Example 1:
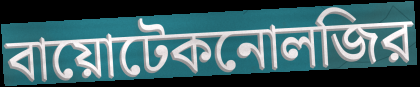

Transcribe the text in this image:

বায়োটেকনোলজির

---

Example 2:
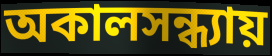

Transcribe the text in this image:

অকালসন্ধ্যায়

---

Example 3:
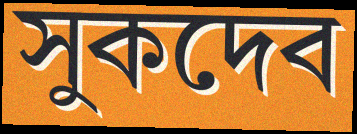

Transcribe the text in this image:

সুকদেব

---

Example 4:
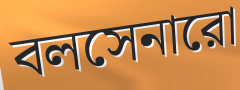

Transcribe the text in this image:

বলসেনারো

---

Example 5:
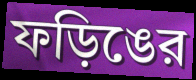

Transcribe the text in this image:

ফড়িঙের